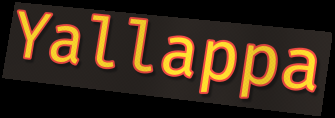
Yallappa